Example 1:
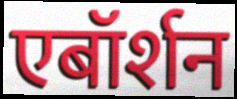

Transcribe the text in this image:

एबॉर्शन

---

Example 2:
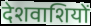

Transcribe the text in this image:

देशवाशियों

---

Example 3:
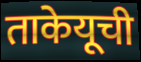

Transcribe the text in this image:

ताकेयूची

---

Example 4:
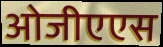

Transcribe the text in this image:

ओजीएएस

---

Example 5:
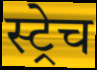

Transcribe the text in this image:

स्ट्रेच